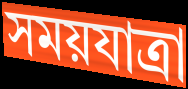
সময়যাত্রা